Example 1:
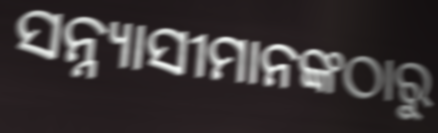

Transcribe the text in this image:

ସନ୍ନ୍ୟାସୀମାନଙ୍କଠାରୁ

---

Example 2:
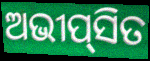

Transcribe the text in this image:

ଅଭୀପ୍‌ସିତ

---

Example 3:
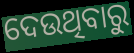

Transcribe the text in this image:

ଦେଉଥିବାରୁ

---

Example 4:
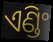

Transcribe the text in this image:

ଏଣ୍ଡିଂ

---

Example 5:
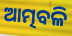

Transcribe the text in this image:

ଆତ୍ମବଳି